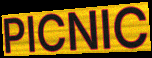
PICNIC